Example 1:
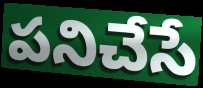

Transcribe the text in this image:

పనిచేసే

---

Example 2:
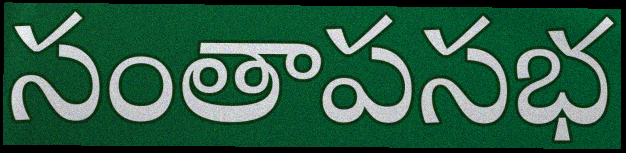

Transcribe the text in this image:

సంతాపసభ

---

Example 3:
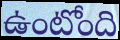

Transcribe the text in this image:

ఉంటోంది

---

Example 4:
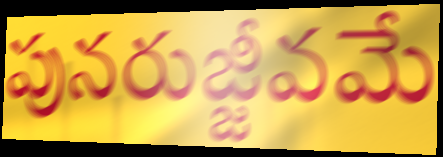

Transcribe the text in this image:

పునరుజ్జీవమే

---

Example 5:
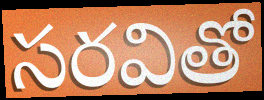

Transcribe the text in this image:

సరవితో